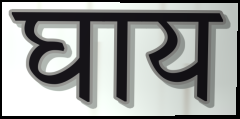
घाय